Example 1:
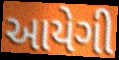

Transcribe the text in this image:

આયેગી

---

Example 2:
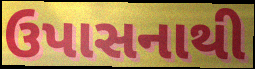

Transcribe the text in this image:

ઉપાસનાથી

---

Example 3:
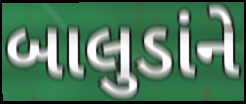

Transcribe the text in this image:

બાલુડાંને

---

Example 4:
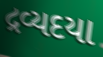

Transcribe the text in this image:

દ્રવ્યદયા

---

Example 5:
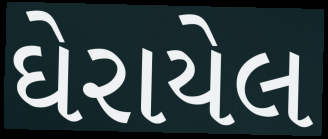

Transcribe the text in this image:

ઘેરાયેલ